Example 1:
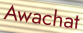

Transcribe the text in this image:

Awachat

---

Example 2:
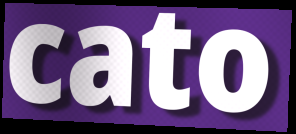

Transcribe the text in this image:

cato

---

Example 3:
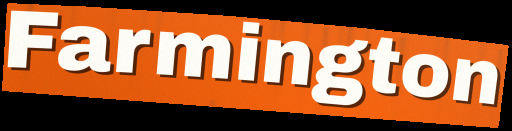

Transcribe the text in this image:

Farmington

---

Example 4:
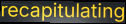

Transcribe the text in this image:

recapitulating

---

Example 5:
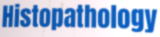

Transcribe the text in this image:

Histopathology